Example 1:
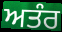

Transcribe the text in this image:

ਅਤੰਰ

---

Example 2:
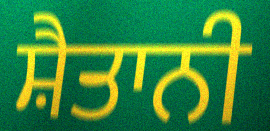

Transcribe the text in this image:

ਸ਼ੈਤਾਨੀ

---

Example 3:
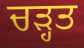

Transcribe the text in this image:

ਚੜ੍ਹਤ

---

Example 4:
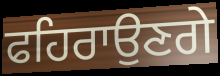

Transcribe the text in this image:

ਫਹਿਰਾਉਣਗੇ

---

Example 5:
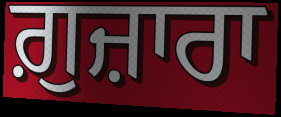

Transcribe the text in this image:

ਗ਼ੁਜ਼ਾਰਾ